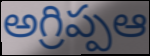
అగ్రిప్పఆ